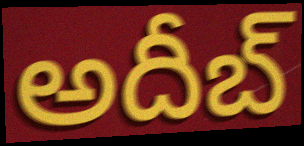
అదీబ్